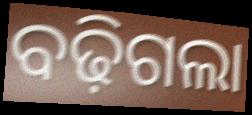
ବଢ଼ିଗଲା